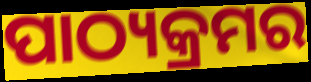
ପାଠ୍ୟକ୍ରମର